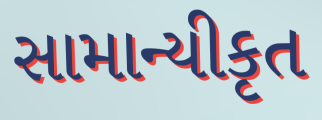
સામાન્યીકૃત